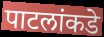
पाटलांकडे